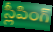
స్లీపింగ్